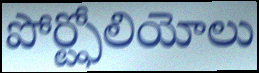
పోర్ట్ఫోలియోలు